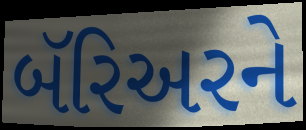
બૅરિઅરને